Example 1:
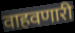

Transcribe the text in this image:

वाहवणारी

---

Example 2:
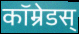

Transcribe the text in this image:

कॉम्रेडस्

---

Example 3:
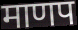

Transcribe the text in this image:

माणप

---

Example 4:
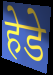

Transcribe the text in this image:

हेडे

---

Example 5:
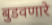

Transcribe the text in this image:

बुडवणारे